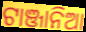
ଟାଞ୍ଜାନିଆ